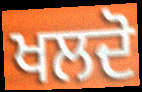
ਖਲਦੋ